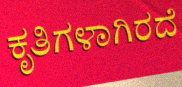
ಕೃತಿಗಳಾಗಿರದೆ